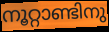
നൂറ്റാണ്ടിനു